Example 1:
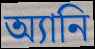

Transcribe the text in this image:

অ্যানি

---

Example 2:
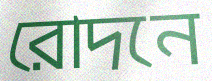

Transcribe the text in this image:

রোদনে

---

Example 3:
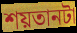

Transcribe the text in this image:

শয়তানটা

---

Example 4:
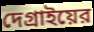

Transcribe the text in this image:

দেগ্রাইয়ের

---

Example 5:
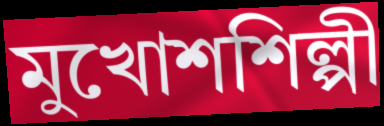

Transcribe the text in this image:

মুখোশশিল্পী